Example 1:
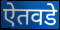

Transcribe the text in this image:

ऐतवडे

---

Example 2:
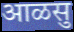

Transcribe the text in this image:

आळसु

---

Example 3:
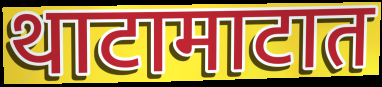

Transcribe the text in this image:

थाटामाटात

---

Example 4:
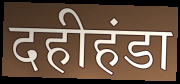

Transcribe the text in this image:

दहीहंडा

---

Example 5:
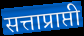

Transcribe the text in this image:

सत्ताप्राप्ती